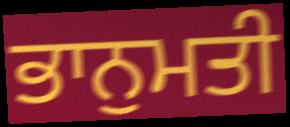
ਭਾਨੁਮਤੀ